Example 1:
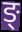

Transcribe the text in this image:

ङ्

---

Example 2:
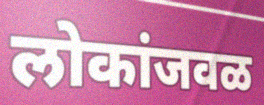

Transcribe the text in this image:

लोकांजवळ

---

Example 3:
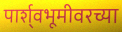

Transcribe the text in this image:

पार्श्वभूमीवरच्या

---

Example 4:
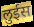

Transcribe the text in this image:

लुईस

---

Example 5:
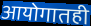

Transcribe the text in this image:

आयोगातही